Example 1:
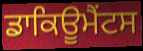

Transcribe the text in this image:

ਡਾਕਿਊਮੈਂਟਸ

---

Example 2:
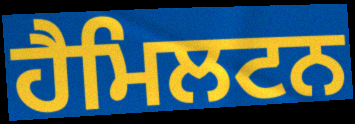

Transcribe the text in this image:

ਹੈਮਿਲਟਨ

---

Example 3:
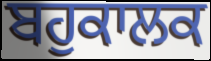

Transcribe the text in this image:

ਬਹੁਕਾਲਕ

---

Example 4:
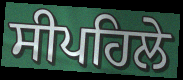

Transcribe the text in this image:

ਸੀਪਹਿਲੇ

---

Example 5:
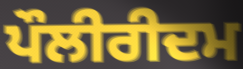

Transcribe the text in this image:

ਪੌਲੀਰੀਦਮ